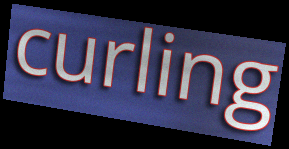
curling